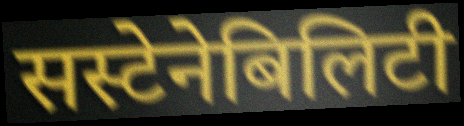
सस्टेनेबिलिटी